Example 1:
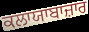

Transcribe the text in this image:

ਕਲਾਯਾਬਾਜ਼ਾਰ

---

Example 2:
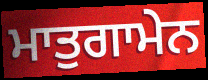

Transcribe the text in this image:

ਮਾਤੁਗਾਮੇਨ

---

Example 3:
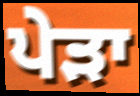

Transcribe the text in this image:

ਪੇੜਾ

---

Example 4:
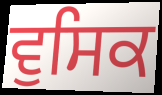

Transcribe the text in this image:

ਵੁਸਿਕ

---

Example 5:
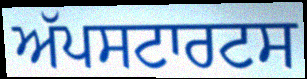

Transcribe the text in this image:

ਅੱਪਸਟਾਰਟਸ